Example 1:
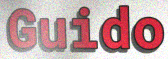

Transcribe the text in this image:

Guido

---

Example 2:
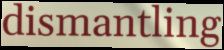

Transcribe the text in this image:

dismantling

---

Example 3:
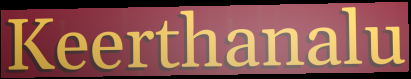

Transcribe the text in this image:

Keerthanalu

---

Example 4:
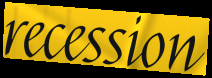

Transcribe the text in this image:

recession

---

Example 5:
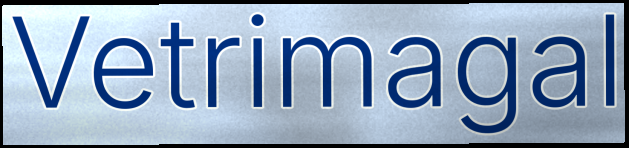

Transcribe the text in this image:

Vetrimagal